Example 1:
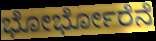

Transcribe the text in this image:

ಭೋರ್ಭೋರೆನೆ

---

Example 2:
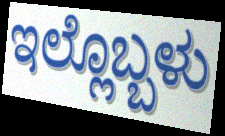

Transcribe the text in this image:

ಇಲ್ಲೊಬ್ಬಳು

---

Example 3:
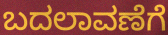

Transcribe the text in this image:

ಬದಲಾವಣೆಗೆ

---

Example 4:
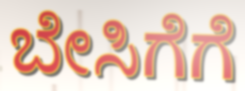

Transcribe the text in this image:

ಬೇಸಿಗೆಗೆ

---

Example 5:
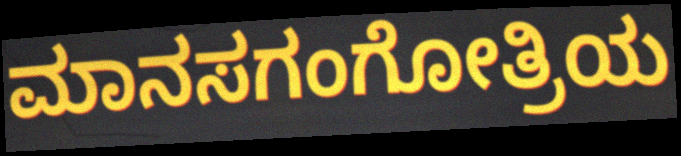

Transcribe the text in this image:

ಮಾನಸಗಂಗೋತ್ರಿಯ